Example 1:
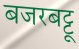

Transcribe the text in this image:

बजरबट्टू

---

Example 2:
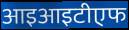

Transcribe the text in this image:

आइआइटीएफ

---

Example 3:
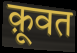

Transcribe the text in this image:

क़ूवत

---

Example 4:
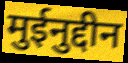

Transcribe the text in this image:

मुईनुद्दीन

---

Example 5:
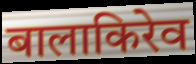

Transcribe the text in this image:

बालाकिरेव